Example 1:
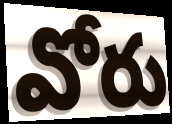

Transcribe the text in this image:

వోరు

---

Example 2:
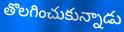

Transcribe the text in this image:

తొలగించుకున్నాడు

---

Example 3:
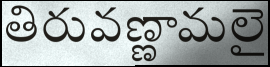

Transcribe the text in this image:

తిరువణ్ణామలై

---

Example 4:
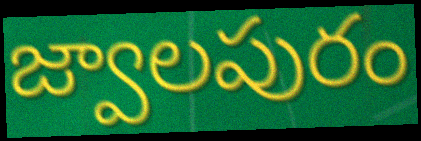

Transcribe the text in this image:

జ్వాలపురం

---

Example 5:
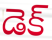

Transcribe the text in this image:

డెక్